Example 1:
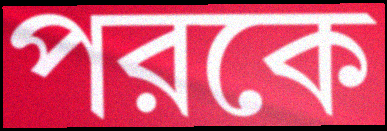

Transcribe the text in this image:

পরকে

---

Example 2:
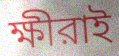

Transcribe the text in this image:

ক্ষীরাই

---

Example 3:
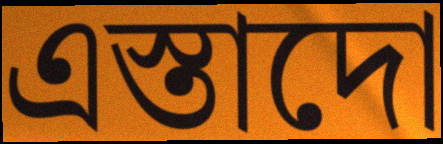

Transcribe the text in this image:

এস্তাদো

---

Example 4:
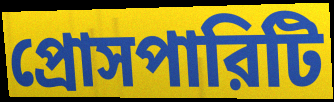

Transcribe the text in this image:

প্রোসপারিটি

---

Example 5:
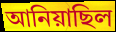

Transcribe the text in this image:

আনিয়াছিল